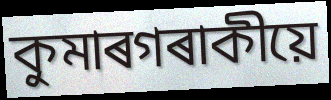
কুমাৰগৰাকীয়ে